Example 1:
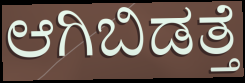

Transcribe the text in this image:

ಆಗಿಬಿಡತ್ತೆ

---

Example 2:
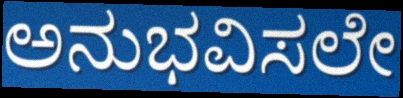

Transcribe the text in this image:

ಅನುಭವಿಸಲೇ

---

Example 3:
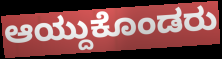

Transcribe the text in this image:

ಆಯ್ದುಕೊಂಡರು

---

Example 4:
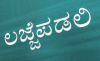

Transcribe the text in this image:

ಲಜ್ಜೆಪಡಲಿ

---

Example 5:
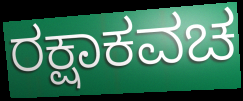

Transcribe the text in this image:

ರಕ್ಷಾಕವಚ